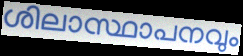
ശിലാസ്ഥാപനവും